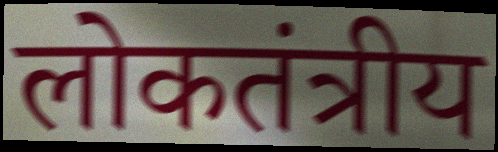
लोकतंत्रीय